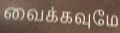
வைக்கவுமே